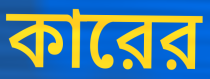
কারের